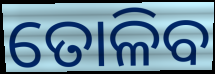
ତୋଳିବ